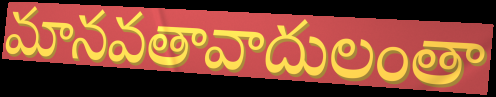
మానవతావాదులంతా